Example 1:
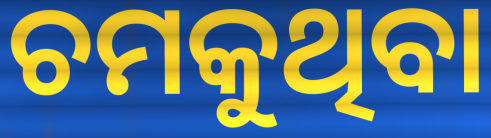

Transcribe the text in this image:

ଚମକୁଥିବା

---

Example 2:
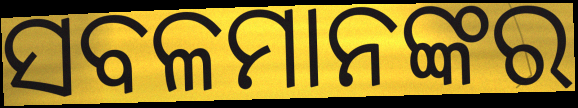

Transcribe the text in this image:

ସବଳମାନଙ୍କର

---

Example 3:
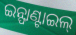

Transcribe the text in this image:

ଇନ୍ଫାଣ୍ଟାଇଲ୍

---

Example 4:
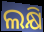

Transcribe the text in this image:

ଲକ୍ଷି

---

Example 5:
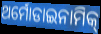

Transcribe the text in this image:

ଥର୍ମୋଡାଇନାମିକ୍